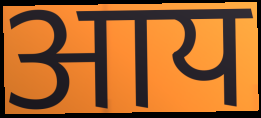
आय